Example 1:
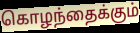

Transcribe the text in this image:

கொழந்தைக்கும்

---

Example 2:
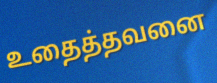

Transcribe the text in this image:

உதைத்தவனை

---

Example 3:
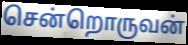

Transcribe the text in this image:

சென்றொருவன்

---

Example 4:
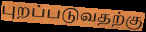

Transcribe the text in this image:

புறப்படுவதற்கு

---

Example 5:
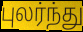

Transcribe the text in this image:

புலர்ந்து